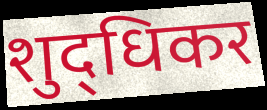
शुद्धिकर